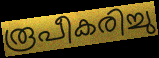
രൂപീകരിച്ചു